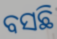
ବସଛି